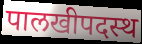
पालखीपदस्थ